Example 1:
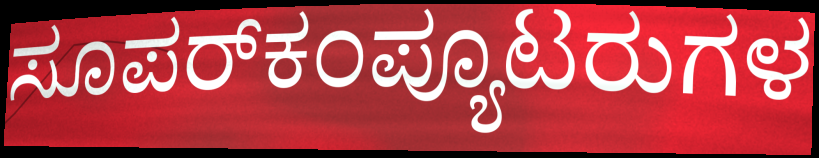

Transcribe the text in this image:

ಸೂಪರ್‌ಕಂಪ್ಯೂಟರುಗಳ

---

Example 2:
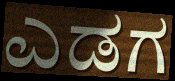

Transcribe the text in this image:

ಎಡಗ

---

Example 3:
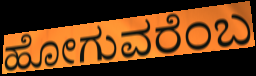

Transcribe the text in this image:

ಹೋಗುವರೆಂಬ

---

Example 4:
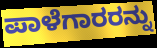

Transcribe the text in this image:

ಪಾಳೆಗಾರರನ್ನು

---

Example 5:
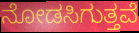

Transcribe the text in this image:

ನೋಡಸಿಗುತ್ತವೆ